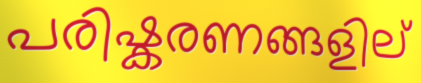
പരിഷ്കരണങ്ങളില്